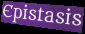
Epistasis